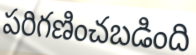
పరిగణించబడింది